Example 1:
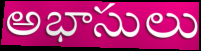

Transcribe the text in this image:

అభాసులు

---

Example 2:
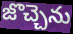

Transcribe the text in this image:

జొచ్చెను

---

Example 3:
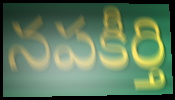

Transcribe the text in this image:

నపకీర్తి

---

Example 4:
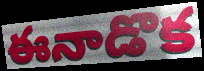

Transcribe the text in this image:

ఈనాడొక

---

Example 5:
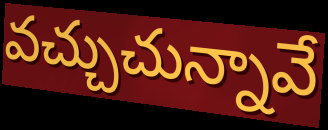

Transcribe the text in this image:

వచ్చుచున్నావే